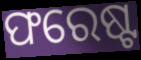
ଫରେଷ୍ଟ